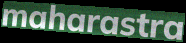
maharastra